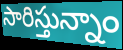
సారిస్తున్నాం